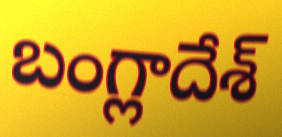
బంగ్లాదేశ్